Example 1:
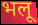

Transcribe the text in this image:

भलू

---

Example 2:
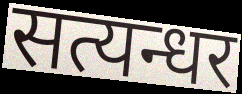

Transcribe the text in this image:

सत्यन्धर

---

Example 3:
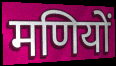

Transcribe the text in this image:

मणियों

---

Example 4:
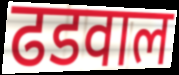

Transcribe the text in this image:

ढडवाल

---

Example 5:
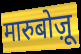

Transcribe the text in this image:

मारुबोज़ू